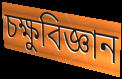
চক্ষুবিজ্ঞান